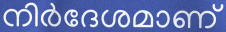
നിർദേശമാണ്